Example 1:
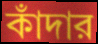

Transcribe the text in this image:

কাঁদার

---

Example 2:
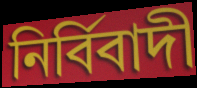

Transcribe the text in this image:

নির্বিবাদী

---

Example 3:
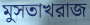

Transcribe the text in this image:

মুসতাখরাজ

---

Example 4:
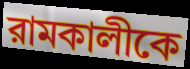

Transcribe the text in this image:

রামকালীকে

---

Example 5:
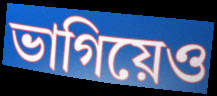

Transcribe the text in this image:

ভাগিয়েও